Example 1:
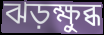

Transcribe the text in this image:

ঝড়ক্ষুব্ধ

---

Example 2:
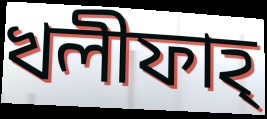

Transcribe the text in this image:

খলীফাহ্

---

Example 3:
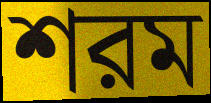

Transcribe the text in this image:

শরম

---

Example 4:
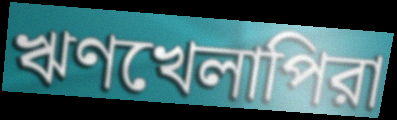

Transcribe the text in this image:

ঋণখেলাপিরা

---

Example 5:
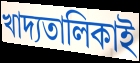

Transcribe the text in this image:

খাদ্যতালিকাই